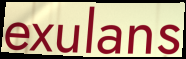
exulans